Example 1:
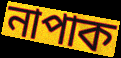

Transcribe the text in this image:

নাপাক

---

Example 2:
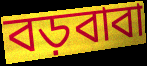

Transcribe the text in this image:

বড়বাবা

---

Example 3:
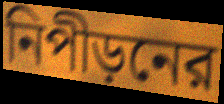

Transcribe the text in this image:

নিপীড়নের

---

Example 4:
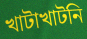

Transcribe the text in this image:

খাটাখাটনি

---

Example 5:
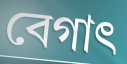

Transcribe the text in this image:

বেগাৎ